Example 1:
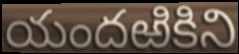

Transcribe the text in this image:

యందఱికిని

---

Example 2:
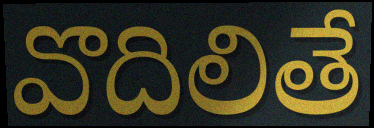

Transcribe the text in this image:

వొదిలితే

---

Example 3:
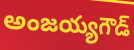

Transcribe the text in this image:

అంజయ్యగౌడ్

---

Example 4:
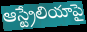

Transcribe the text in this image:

ఆస్ట్రేలియాపై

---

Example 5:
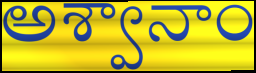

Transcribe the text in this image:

అశ్వానాం